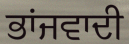
ਭਾਂਜਵਾਦੀ